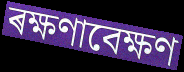
ৰক্ষণাবেক্ষণ